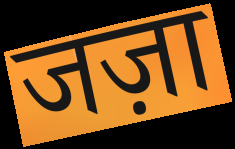
जज़ा